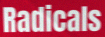
Radicals